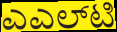
ಎಎಲ್‌ಟಿ